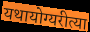
यथायोग्यरीत्या